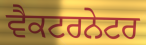
ਵੈਕਟਰਨੇਟਰ